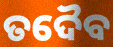
ତଦୈବ